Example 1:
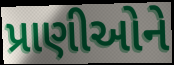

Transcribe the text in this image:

પ્રાણીઓને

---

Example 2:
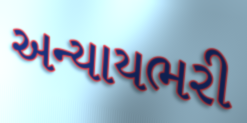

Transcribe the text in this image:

અન્યાયભરી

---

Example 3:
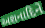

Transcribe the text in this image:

અશનાદિને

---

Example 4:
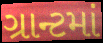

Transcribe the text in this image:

ગ્રાન્ટમાં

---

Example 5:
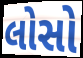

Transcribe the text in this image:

લોસો